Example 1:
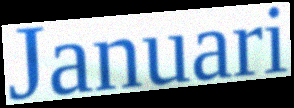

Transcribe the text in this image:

Januari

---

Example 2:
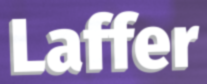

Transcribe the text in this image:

Laffer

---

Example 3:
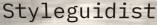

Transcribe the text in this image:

Styleguidist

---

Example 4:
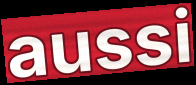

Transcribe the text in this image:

aussi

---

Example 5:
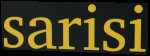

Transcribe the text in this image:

sarisi